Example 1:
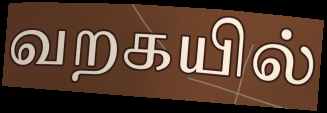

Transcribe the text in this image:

வறகயில்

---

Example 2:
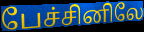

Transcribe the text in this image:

பேச்சினிலே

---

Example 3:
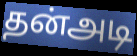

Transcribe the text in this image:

தன்அடி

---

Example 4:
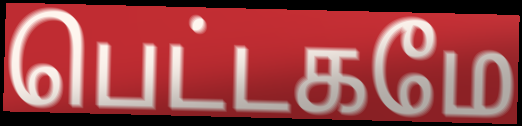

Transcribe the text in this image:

பெட்டகமே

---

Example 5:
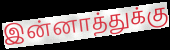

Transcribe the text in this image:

இன்னாத்துக்கு